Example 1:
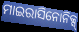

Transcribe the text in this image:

ମାଇରାସିନୋନିକ୍ସ୍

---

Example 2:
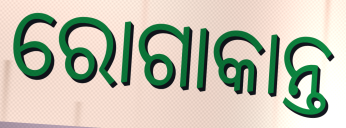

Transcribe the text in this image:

ରୋଗାକାନ୍ତ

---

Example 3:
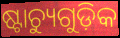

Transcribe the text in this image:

ଷ୍ଟାଚ୍ୟୁଗୁଡ଼ିକ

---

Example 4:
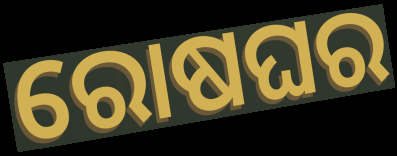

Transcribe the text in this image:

ରୋଷଘର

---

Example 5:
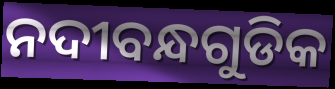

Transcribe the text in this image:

ନଦୀବନ୍ଧଗୁଡିକ